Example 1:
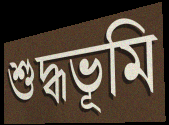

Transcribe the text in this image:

শুদ্ধভূমি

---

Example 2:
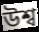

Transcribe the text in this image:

উশ্ব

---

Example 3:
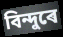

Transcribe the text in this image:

বিন্দুৰে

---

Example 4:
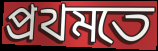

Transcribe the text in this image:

প্ৰথমতে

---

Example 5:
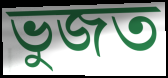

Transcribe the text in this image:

ভুজত